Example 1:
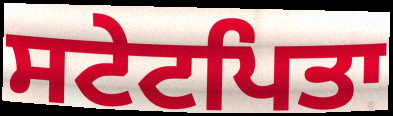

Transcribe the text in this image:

ਸਟੇਟਪਿਤਾ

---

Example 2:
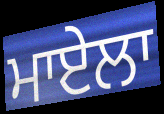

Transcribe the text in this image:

ਮਾਏਲਾ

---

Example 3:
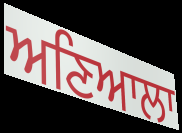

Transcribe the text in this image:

ਅਣਿਆਲਾ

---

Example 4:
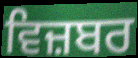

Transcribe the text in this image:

ਵਿਜ਼ਬਰ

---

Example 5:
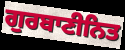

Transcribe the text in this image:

ਗੁਰਬਾਣੀਨਿਤ